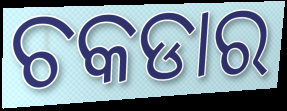
ଚକଡାର